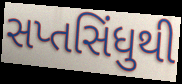
સપ્તસિંધુથી